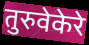
तुरुवेकेरे